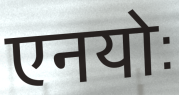
एनयोः